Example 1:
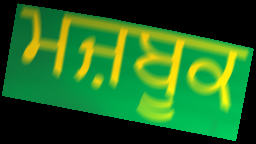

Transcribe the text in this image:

ਮਜ਼ਬੂਕ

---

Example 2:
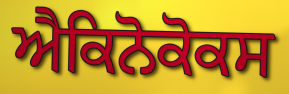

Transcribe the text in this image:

ਐਕਿਨੋਕੋਕਸ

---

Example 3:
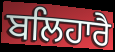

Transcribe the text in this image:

ਬਲਿਹਾਰੈ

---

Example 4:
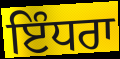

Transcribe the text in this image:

ਇੰਧਰਾ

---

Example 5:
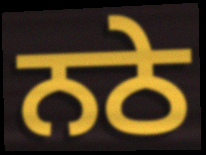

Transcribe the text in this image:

ਨਠੇ